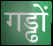
गड्ढों